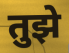
तुझे